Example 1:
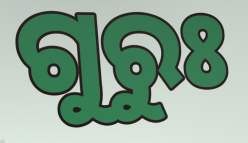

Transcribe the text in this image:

ଗୁରୁଃ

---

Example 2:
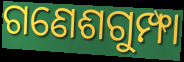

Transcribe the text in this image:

ଗଣେଶଗୁମ୍ଫା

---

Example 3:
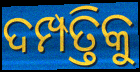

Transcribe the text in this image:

ଦମ୍ପତ୍ତିକୁ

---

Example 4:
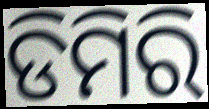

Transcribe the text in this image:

ଡିମିରି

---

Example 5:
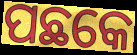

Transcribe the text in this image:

ପଛକେ